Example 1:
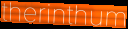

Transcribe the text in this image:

therinthum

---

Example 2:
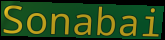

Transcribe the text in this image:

Sonabai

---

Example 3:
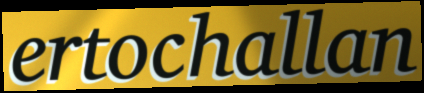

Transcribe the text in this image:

ertochallan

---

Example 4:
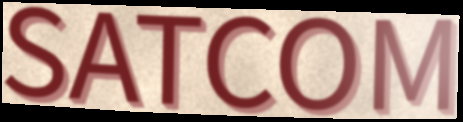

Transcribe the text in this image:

SATCOM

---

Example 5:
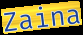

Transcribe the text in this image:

Zaina